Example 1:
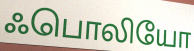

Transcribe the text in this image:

ஃபொலியோ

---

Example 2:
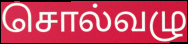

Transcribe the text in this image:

சொல்வழு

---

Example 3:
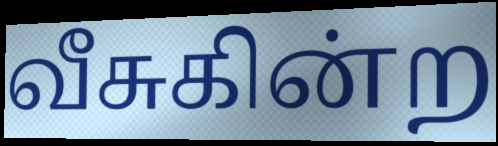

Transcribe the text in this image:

வீசுகின்ற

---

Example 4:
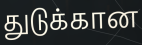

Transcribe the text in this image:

துடுக்கான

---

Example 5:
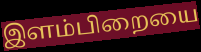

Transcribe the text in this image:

இளம்பிறையை